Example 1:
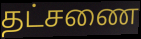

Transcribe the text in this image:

தட்சணை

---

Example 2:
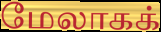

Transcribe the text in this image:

மேலாகக்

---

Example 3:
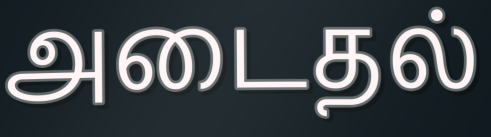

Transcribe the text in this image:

அடைதல்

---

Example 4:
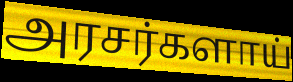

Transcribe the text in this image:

அரசர்களாய்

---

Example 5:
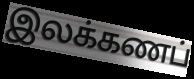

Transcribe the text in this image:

இலக்கணப்